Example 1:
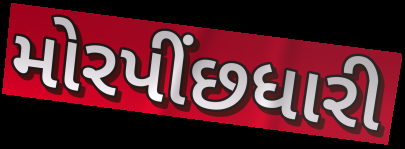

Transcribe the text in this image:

મોરપીંછધારી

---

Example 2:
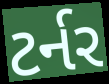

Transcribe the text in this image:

ટર્નર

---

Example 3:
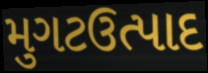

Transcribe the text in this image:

મુગટઉત્પાદ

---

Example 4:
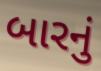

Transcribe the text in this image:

બારનું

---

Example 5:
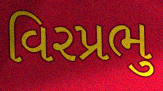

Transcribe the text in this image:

વિરપ્રભુ